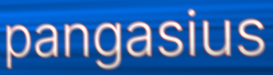
pangasius